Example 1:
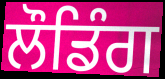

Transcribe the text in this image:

ਲੌਡਿੰਗ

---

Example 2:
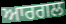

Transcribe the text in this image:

ਆਰਗਲ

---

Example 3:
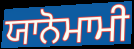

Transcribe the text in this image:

ਯਾਨੋਮਾਮੀ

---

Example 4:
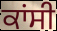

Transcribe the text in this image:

ਕਾਂਸੀ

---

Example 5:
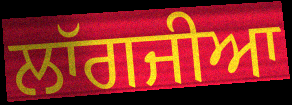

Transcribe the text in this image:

ਲਾੱਗਜੀਆ